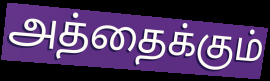
அத்தைக்கும்